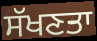
ਸੱਖਣਤਾ